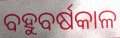
ବହୁବର୍ଷକାଳ